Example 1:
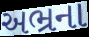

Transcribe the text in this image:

અભ્રના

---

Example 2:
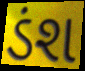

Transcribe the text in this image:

ડંશ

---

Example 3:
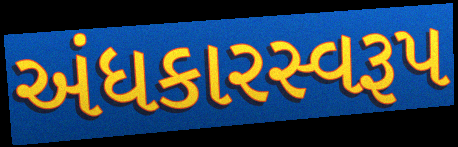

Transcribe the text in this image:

અંધકારસ્વરૂપ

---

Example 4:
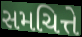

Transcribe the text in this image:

સમચિત્તે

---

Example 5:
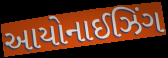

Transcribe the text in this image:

આયોનાઈઝિંગ